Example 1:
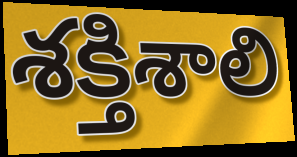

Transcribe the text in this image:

శక్తిశాలి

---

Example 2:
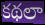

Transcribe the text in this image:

కథలా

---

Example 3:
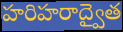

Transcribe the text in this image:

హరిహరాద్వైత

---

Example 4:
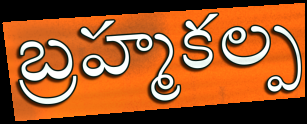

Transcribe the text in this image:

బ్రహ్మకల్ప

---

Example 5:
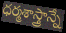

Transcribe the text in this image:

ధర్మశాస్త్రాన్నే